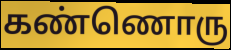
கண்ணொரு